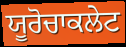
ਯੂਰੋਚਾਕਲੇਟ